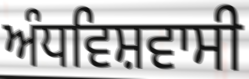
ਅੰਧਵਿਸ਼ਵਾਸੀ